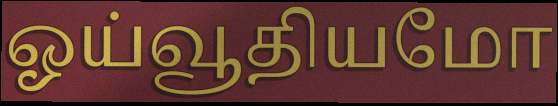
ஓய்வூதியமோ